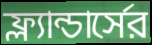
ফ্ল্যান্ডার্সের